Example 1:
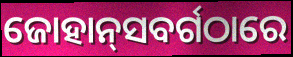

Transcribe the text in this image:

ଜୋହାନ୍‌ସବର୍ଗଠାରେ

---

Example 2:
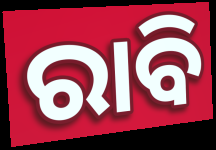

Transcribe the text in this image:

ରାବି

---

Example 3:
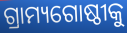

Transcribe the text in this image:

ଗ୍ରାମ୍ୟଗୋଷ୍ଠୀକୁ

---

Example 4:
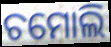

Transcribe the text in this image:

ଚମୋଲି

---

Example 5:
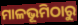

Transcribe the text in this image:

ମାଳଭୂମିଠାରୁ